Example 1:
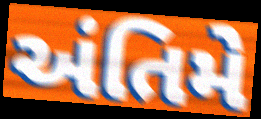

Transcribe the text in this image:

અંતિમે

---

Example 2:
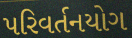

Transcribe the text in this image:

પરિવર્તનયોગ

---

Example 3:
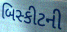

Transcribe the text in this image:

બિસ્કીટની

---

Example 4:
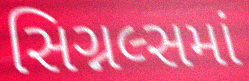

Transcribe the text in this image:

સિગ્નલ્સમાં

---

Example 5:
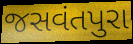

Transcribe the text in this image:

જસવંતપુરા